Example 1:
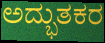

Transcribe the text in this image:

ಅದ್ಭುತಕರ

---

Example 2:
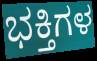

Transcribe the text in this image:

ಭಕ್ತಿಗಳ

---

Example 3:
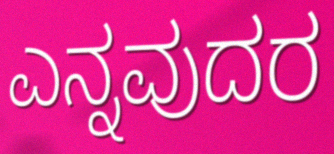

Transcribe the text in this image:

ಎನ್ನವುದರ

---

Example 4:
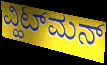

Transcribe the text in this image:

ವ್ಹಿಟ್‌ಮನ್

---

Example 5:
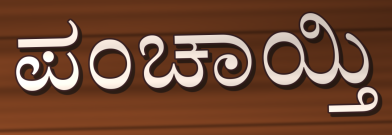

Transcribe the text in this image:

ಪಂಚಾಯ್ತಿ